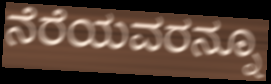
ನೆರೆಯವರನ್ನೂ